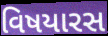
વિષયારસ